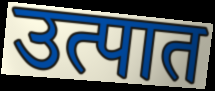
उत्पात